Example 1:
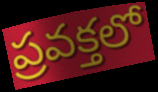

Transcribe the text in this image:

ప్రవక్తలో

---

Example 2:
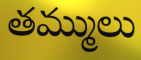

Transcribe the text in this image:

తమ్ములు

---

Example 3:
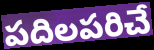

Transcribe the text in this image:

పదిలపరిచే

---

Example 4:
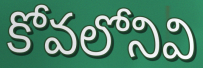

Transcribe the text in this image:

కోవలోనివి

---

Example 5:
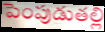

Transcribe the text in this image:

పెంపుడుతల్లి